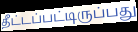
தீட்டப்பட்டிருப்பது